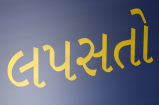
લપસતો